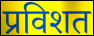
प्रविशत